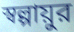
স্বল্পায়ুর